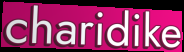
charidike